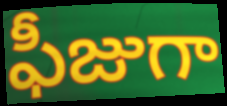
ఫీజుగా